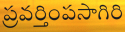
ప్రవర్తింపసాగిరి